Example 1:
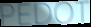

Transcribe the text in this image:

PEDOT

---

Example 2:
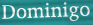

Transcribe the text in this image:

Dominigo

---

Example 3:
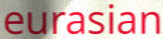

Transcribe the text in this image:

eurasian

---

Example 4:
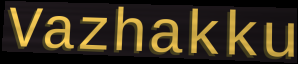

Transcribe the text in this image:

Vazhakku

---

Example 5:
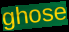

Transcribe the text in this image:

ghose